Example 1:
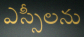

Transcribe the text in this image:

ఎస్సీలను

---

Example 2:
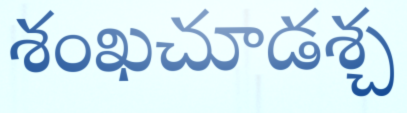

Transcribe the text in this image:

శంఖచూడశ్చ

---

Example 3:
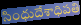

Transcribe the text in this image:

సింధుదేశాధిపతి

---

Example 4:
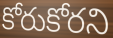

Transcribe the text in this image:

కోరుకోరని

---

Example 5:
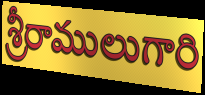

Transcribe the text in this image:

శ్రీరాములుగారి